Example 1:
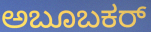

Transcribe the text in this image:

ಅಬೂಬಕರ್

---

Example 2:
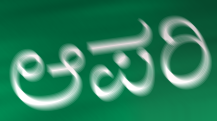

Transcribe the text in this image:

ಆಪರಿ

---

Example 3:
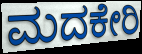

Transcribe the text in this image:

ಮದಕೇರಿ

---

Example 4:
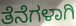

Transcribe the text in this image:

ತೆನೆಗಳಾಗಿ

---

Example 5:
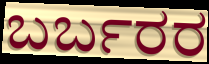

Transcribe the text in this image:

ಬರ್ಬರರ